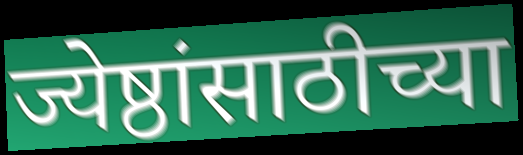
ज्येष्ठांसाठीच्या